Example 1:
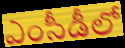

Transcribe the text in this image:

ఎంసీడీలో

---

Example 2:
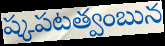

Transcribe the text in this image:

ష్కపటత్వంబున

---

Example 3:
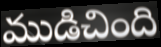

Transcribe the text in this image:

ముడిచింది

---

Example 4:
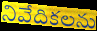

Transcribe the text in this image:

నివేదికలను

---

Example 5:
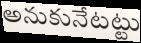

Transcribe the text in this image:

అనుకునేటట్టు